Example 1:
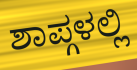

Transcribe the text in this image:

ಶಾಪ್ಗಳಲ್ಲಿ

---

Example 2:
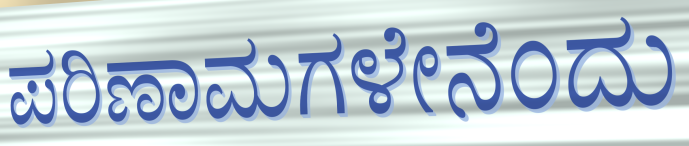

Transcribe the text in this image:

ಪರಿಣಾಮಗಳೇನೆಂದು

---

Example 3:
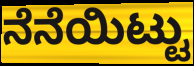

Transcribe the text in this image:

ನೆನೆಯಿಟ್ಟು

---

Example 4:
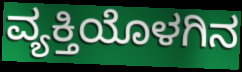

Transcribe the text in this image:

ವ್ಯಕ್ತಿಯೊಳಗಿನ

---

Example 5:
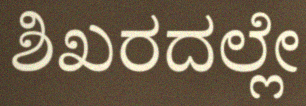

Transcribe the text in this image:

ಶಿಖರದಲ್ಲೇ